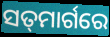
ସତ୍‌ମାର୍ଗରେ